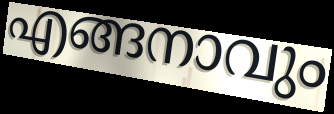
എങ്ങനാവും